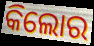
କିଲୋର